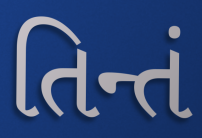
તિન્તં